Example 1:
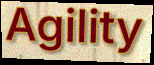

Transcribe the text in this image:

Agility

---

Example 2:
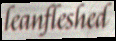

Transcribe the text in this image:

leanfleshed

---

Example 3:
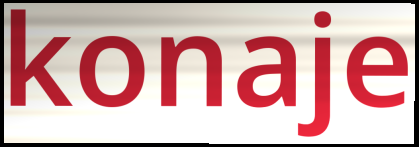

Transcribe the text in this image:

konaje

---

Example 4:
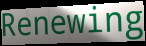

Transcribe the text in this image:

Renewing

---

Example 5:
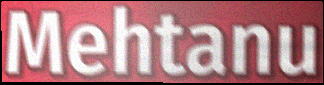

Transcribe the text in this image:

Mehtanu